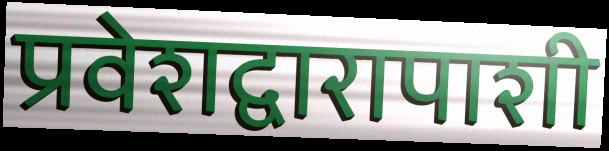
प्रवेशद्वारापाशी